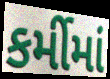
કર્મીમાં